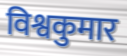
विश्वकुमार